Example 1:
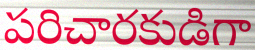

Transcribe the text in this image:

పరిచారకుడిగా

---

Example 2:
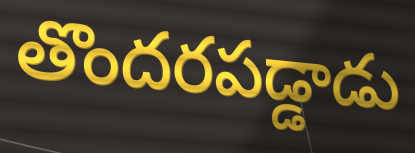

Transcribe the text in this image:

తొందరపడ్డాడు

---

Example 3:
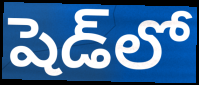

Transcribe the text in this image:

షెడ్‌లో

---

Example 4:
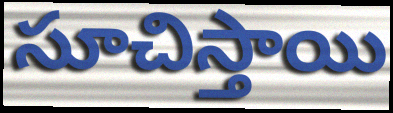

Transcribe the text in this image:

సూచిస్తాయి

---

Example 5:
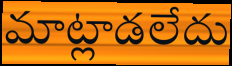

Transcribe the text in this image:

మాట్లాడలేదు